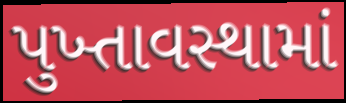
પુખ્તાવસ્થામાં